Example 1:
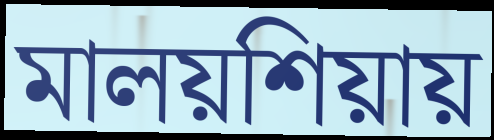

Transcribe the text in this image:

মালয়শিয়ায়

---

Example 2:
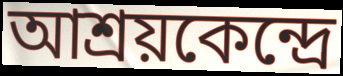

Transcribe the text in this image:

আশ্রয়কেন্দ্রে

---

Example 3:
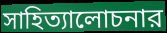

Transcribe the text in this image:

সাহিত্যালোচনার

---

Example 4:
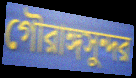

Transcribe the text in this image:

গৌরাঙ্গসুন্দর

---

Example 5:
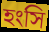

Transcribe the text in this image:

হংসি